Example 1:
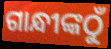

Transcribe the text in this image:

ଗାନ୍ଧୀଙ୍କଠୁଁ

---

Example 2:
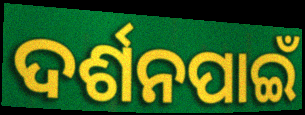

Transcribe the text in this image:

ଦର୍ଶନପାଇଁ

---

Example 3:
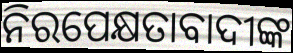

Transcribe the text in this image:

ନିରପେକ୍ଷତାବାଦୀଙ୍କ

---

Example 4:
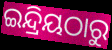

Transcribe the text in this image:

ଇନ୍ଦ୍ରିୟଠାରୁ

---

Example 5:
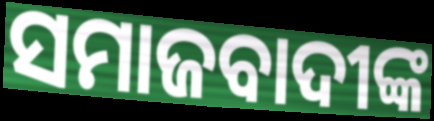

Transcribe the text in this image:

ସମାଜବାଦୀଙ୍କ